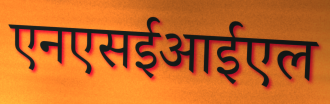
एनएसईआईएल